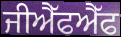
ਜੀਐੱਫਐੱਫ